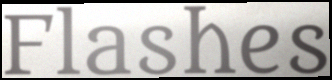
Flashes